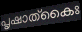
പൃഷാത്കൈഃ